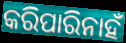
କରିପାରିନାହଁ